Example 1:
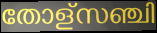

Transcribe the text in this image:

തോള്സഞ്ചി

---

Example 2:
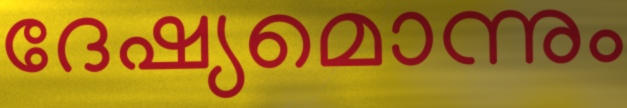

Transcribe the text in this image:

ദേഷ്യമൊന്നും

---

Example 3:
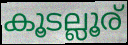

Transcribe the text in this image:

കൂടല്ലൂര്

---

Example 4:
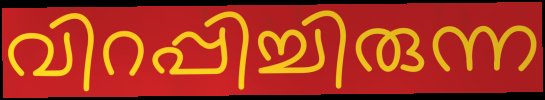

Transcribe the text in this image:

വിറപ്പിച്ചിരുന്ന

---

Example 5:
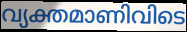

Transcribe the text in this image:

വ്യക്തമാണിവിടെ